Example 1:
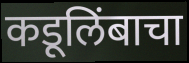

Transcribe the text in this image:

कडूलिंबाचा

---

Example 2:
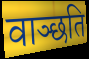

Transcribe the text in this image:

वाञ्छति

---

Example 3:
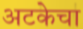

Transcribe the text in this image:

अटकेचा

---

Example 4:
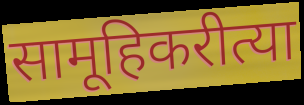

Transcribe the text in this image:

सामूहिकरीत्या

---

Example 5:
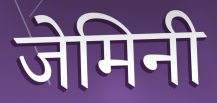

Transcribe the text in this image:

जेमिनी